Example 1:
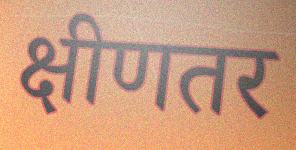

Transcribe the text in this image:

क्षीणतर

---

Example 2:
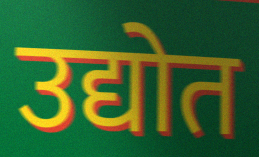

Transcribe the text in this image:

उद्योत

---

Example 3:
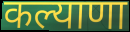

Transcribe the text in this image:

कल्याणा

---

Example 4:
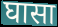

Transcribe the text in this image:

घासा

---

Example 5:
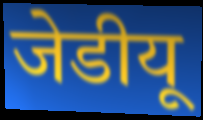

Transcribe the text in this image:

जेडीयू